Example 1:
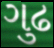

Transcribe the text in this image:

ગુઢ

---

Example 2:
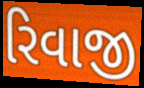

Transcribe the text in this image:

રિવાજી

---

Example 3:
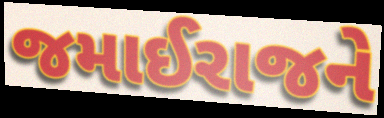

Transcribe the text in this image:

જમાઈરાજને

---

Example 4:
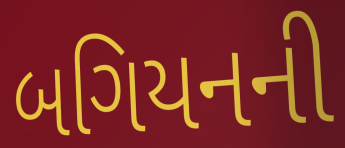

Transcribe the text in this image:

બગિયનની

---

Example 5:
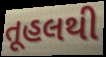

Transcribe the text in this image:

તૂહલથી